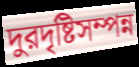
দুরদৃষ্টিসম্পন্ন